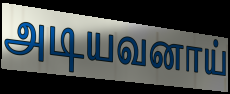
அடியவனாய்